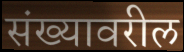
संख्यावरील